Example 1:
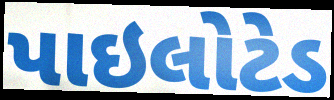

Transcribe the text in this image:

પાઇલોટેડ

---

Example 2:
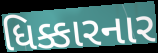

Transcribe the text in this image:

ધિક્કારનાર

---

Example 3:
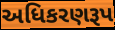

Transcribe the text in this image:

અધિકરણરૂપ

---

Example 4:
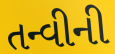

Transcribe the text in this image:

તન્વીની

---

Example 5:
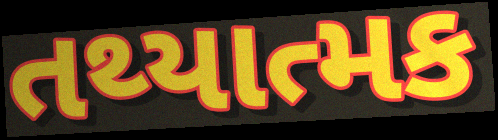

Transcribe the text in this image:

તથ્યાત્મક